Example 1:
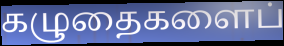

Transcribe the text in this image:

கழுதைகளைப்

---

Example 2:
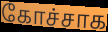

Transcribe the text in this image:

கோச்சாக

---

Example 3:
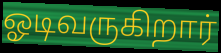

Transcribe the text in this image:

ஓடிவருகிறார்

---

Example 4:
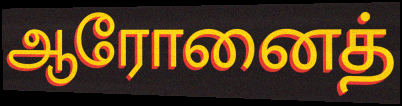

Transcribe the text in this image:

ஆரோனைத்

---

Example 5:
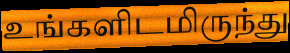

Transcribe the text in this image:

உங்களிடமிருந்து